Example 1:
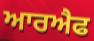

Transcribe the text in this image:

ਆਰਐਫ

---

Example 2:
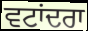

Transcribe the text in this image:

ਵਟਾਂਦਰਾ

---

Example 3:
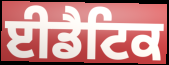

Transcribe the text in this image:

ਈਡੈਟਿਕ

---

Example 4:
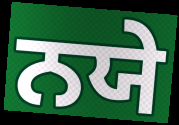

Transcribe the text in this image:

ਨਯੇ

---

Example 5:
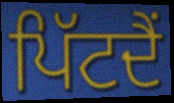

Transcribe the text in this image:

ਪਿੱਟਦੈਂ